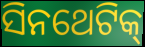
ସିନଥେଟିକ୍